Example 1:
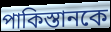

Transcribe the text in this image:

পাকিস্তানকে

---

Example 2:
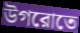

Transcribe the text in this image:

উগরোতে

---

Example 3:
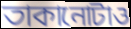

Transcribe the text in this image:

তাকানোটাও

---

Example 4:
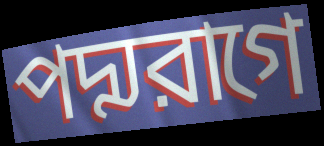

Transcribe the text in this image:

পদ্মরাগে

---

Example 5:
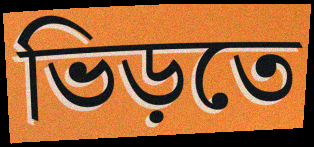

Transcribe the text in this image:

ভিড়তে